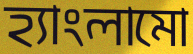
হ্যাংলামো